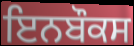
ਇਨਬੌਕਸ